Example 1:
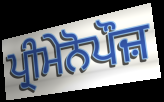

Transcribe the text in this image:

ਪ੍ਰੀਮੇਨੋਪੌਜ਼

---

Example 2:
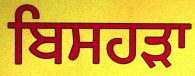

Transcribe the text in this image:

ਬਿਸਹੜਾ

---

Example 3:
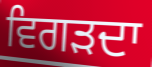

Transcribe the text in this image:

ਵਿਗੜਦਾ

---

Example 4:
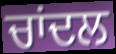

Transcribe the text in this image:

ਚਾਂਦਲ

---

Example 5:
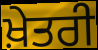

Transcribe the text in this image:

ਖ਼ੇਤਰੀ